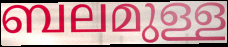
ബലമുള്ള